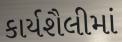
કાર્યશૈલીમાં